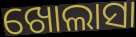
ଖୋଲାସା